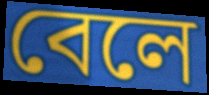
বেলে